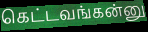
கெட்டவங்கன்னு